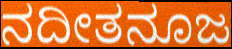
ನದೀತನೂಜ